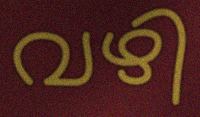
വഴി